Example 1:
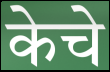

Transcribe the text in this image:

केचे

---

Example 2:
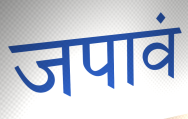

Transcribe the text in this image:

जपावं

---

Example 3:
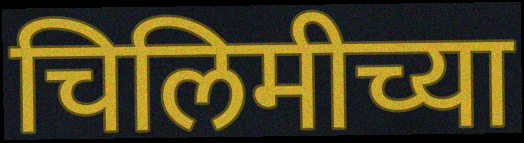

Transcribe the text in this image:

चिलिमीच्या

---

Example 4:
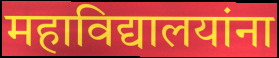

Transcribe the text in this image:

महाविद्यालयांना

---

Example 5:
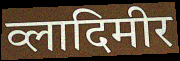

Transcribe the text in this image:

व्लादिमीर